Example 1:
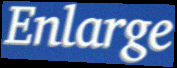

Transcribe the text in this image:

Enlarge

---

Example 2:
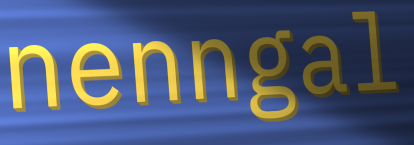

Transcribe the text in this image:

nenngal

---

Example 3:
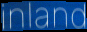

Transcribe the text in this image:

inland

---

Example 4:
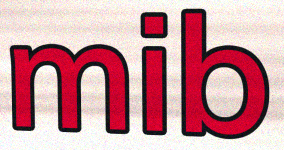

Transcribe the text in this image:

mib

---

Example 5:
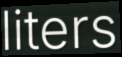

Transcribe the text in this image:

liters